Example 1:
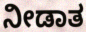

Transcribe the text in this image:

ನೀಡಾತ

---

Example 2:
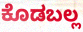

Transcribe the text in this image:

ಕೊಡಬಲ್ಲ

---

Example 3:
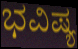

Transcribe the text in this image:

ಭವಿಷ್ಯ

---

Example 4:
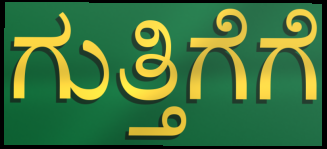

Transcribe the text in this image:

ಗುತ್ತಿಗೆಗೆ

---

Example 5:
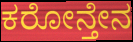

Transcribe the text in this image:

ಕರೋನ್ತೇನ